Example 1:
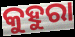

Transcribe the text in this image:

କୁହୁରା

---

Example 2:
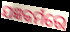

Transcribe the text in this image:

ଯଜ୍ଞକର୍ମରେ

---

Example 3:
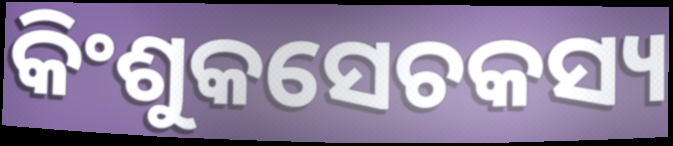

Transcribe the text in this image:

କିଂଶୁକସେଚକସ୍ୟ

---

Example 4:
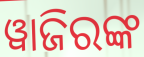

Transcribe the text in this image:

ୱାଜିରଙ୍କ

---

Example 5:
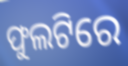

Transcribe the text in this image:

ଫୁଲଟିରେ